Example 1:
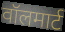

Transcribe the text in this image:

वॉलमार्ट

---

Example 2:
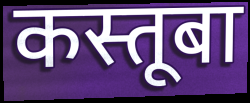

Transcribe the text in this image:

कस्तूबा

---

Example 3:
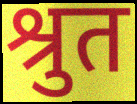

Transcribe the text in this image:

श्रुत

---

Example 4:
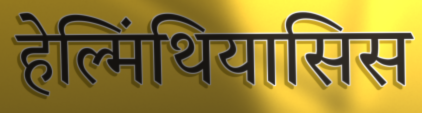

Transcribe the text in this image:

हेल्मिंथियासिस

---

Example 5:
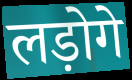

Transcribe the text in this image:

लड़ोगे